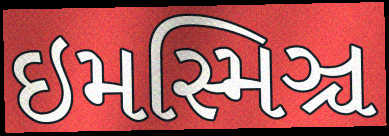
ઇમસ્મિઞ્ચ